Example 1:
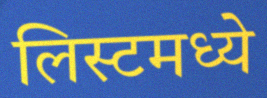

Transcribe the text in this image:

लिस्टमध्ये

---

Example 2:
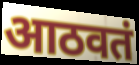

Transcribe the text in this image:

आठवतं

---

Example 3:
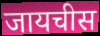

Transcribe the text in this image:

जायचीस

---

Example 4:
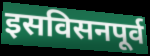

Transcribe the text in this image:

इसविसनपूर्व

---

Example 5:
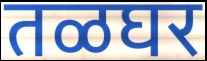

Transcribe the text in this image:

तळघर